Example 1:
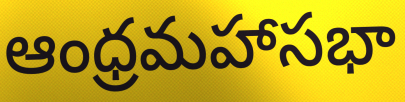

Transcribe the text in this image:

ఆంధ్రమహాసభా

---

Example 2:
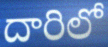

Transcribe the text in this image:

దారిలో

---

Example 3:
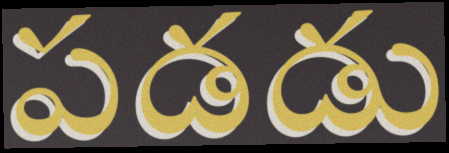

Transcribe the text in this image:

పడడు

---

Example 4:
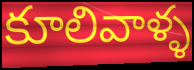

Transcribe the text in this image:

కూలివాళ్ళ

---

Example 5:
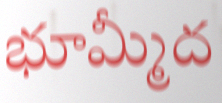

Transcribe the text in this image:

భూమ్మీద